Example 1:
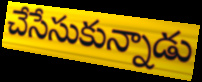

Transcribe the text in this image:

చేసేసుకున్నాడు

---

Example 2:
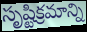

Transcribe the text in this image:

సృష్టిక్రమాన్ని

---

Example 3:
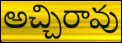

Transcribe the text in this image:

అచ్చిరావు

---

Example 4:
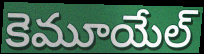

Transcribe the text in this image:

కెమూయేల్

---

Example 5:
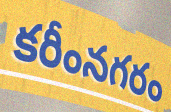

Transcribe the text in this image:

కరీంనగరం